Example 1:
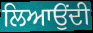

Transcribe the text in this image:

ਲਿਆਉਂਦੀ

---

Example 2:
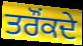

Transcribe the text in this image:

ਤਰੌਂਕਦੇ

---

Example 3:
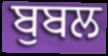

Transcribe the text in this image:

ਬੁਬਲ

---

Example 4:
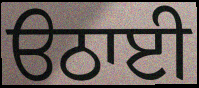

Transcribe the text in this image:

ੳਠਾਈ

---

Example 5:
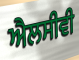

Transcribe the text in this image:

ਐਲਸੀਵੀ